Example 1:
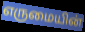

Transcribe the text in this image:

எருமையின்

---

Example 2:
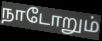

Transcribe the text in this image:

நாடோறும்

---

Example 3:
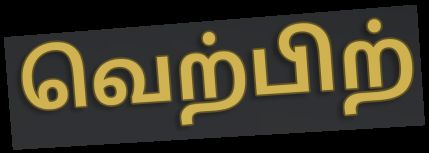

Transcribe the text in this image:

வெற்பிற்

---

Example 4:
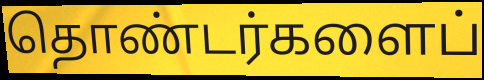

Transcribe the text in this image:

தொண்டர்களைப்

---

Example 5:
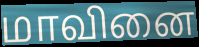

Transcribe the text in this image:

மாவினை